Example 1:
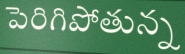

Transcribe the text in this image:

పెరిగిపోతున్న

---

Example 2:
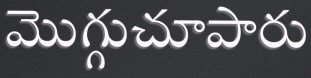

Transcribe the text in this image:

మొగ్గుచూపారు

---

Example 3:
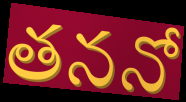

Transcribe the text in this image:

తననో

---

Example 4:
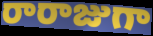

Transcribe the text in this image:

రారాజుగా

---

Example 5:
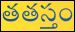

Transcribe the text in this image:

తతస్తం